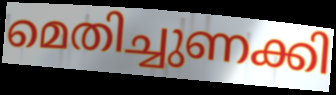
മെതിച്ചുണക്കി